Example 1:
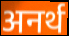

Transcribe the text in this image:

अनर्थ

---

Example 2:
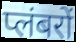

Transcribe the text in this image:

प्लंबरों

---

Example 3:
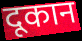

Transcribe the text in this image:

दूकान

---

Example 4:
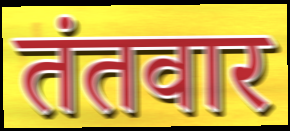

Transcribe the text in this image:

तंतवार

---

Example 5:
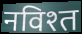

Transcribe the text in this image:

नविश्त